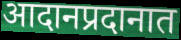
आदानप्रदानात